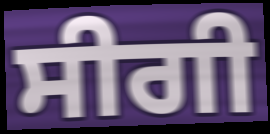
ਸੀਗੀ